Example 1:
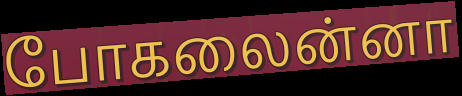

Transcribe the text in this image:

போகலைன்னா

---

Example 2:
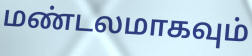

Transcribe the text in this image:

மண்டலமாகவும்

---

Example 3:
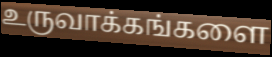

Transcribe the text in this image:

உருவாக்கங்களை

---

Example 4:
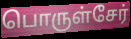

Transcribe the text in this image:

பொருள்சேர்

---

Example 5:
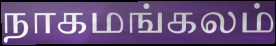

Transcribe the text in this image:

நாகமங்கலம்